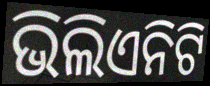
ଭିଲିଏନିଟି